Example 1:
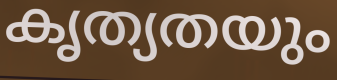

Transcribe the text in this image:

കൃത്യതയും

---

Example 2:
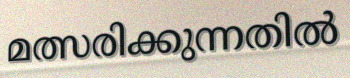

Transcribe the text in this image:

മത്സരിക്കുന്നതിൽ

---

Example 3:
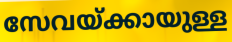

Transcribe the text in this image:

സേവയ്ക്കായുള്ള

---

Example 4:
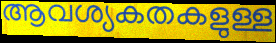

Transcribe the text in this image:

ആവശ്യകതകളുള്ള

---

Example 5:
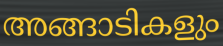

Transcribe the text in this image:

അങ്ങാടികളും